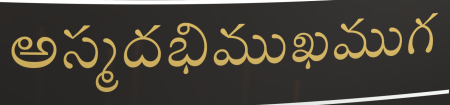
అస్మదభిముఖముగ